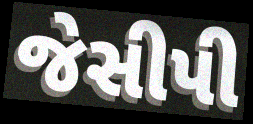
જેસીપી